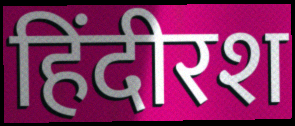
हिंदीरश